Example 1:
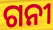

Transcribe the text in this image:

ଗନୀ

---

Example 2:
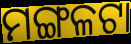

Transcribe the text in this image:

ମଙ୍ଗଳଟା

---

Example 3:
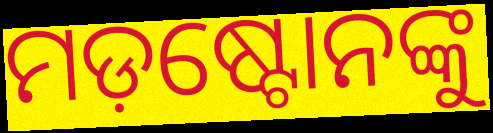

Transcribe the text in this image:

ମଡ଼ଷ୍ଟୋନଙ୍କୁ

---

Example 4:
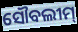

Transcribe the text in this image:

ସୌବଲୀମ୍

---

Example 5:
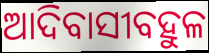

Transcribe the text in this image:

ଆଦିବାସୀବହୁଳ